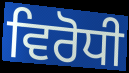
ਵਿਰੋਧੀ